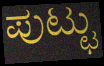
ಪುಟ್ಟು